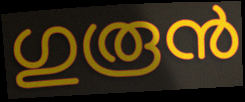
ഗുരൂൻ